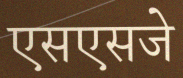
एसएसजे